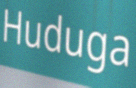
Huduga